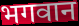
भगवान